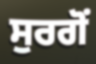
ਸੁਰਗੋਂ